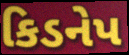
કિડનેપ